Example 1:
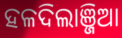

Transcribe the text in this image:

ହଳଦିଲାଞ୍ଜିଆ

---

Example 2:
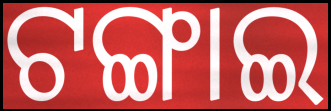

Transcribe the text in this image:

ଟଙ୍ଗାଇ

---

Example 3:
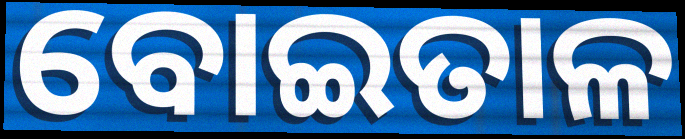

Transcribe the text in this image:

ବୋଇତାଳ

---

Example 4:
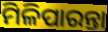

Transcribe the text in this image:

ମିଳିପାରନ୍ତା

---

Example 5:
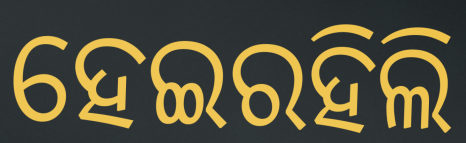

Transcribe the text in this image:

ହେଇରହିଲି